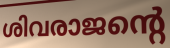
ശിവരാജന്റെ